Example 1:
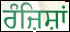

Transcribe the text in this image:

ਰੰਜ਼ਿਸ਼ਾਂ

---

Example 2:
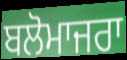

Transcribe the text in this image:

ਬਲੋਮਾਜਰਾ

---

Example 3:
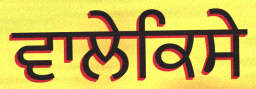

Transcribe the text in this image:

ਵਾਲੇਕਿਸੇ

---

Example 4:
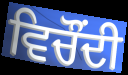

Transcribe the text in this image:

ਵਿਚੌਂਦੀ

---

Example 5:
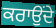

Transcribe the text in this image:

ਕਰਾਉੰਦੇ